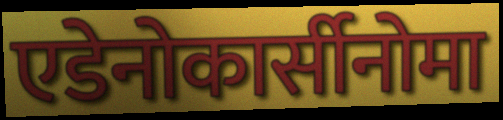
एडेनोकार्सीनोमा